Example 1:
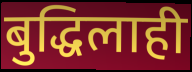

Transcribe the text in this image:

बुद्धिलाही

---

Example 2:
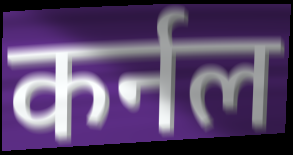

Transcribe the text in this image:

कर्नल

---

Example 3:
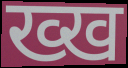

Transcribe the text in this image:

ख्ख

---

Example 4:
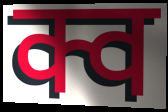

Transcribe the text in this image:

क्व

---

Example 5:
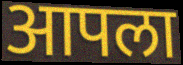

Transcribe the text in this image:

आपला